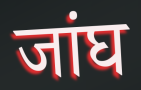
जांघ